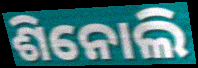
ଶିନୋଲି